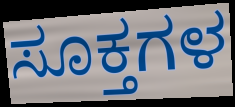
ಸೂಕ್ತಗಳ